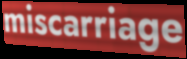
miscarriage